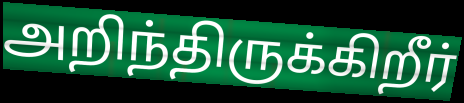
அறிந்திருக்கிறீர்